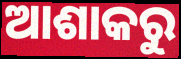
ଆଶାକରୁ